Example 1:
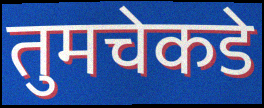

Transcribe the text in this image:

तुमचेकडे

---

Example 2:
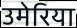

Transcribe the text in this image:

उमेरिया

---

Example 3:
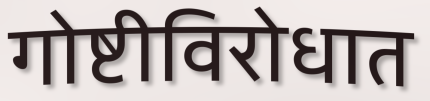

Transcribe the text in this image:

गोष्टीविरोधात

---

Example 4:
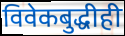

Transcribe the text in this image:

विवेकबुद्धीही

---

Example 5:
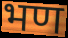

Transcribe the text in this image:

भण